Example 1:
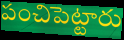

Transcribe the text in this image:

పంచిపెట్టారు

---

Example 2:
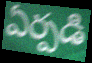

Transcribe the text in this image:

ఏర్పడి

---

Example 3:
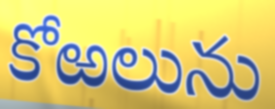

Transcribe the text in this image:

కోఱలును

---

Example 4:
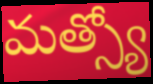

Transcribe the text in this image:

మత్స్యో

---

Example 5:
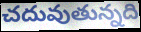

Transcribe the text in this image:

చదువుతున్నది